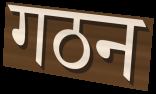
गठन